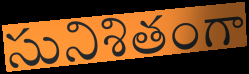
సునిశితంగా